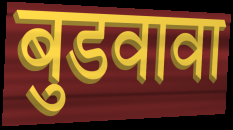
बुडवावा